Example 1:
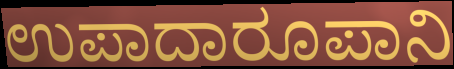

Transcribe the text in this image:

ಉಪಾದಾರೂಪಾನಿ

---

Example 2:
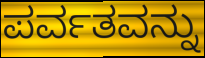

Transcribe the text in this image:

ಪರ್ವತವನ್ನು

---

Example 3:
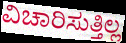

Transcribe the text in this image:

ವಿಚಾರಿಸುತ್ತಿಲ್ಲ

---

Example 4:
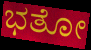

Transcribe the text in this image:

ಭತೋ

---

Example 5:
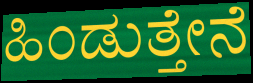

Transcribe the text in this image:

ಹಿಂಡುತ್ತೇನೆ